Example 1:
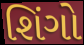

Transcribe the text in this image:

શિંગો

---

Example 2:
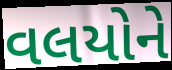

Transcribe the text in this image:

વલયોને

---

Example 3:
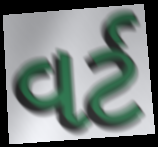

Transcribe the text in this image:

વર્ટ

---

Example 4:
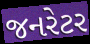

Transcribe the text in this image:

જનરેટર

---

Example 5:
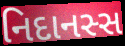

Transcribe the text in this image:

નિદાનસ્સ